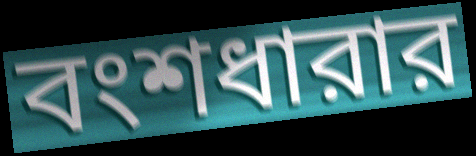
বংশধারার